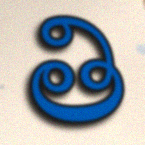
తి